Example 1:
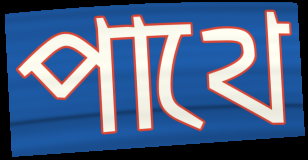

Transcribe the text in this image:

পাথে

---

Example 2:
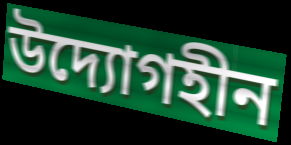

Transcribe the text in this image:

উদ্যোগহীন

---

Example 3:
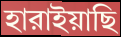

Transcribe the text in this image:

হারাইয়াছি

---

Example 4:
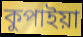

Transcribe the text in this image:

কুপাইয়া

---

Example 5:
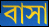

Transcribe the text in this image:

বাসা